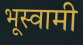
भूस्‍वामी